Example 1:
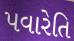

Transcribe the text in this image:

પવારેતિ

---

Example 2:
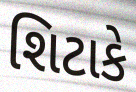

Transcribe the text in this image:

શિટાકે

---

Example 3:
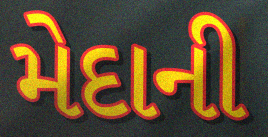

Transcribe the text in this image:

મેદાની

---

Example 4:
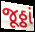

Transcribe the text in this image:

જૂઠ્ઠાં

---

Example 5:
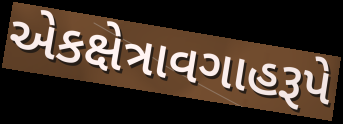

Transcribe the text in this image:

એકક્ષેત્રાવગાહરૂપે